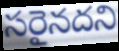
సరైనదని